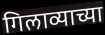
गिलाव्याच्या